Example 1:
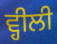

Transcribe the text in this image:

ਵ੍ਹੀਲੀ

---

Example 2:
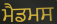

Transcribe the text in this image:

ਮੈਡਮਸ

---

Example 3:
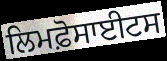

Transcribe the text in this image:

ਲਿਮਫ਼ੋਸਾਈਟਸ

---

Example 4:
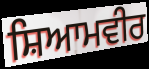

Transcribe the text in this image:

ਸ਼ਿਆਮਵੀਰ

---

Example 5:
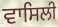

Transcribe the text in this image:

ਵਾਸਿਲੀ